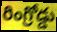
రింగ్రోడ్డు